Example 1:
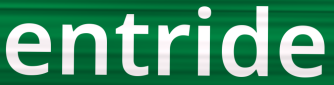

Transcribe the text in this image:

entride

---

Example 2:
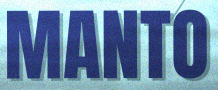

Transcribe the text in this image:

MANTO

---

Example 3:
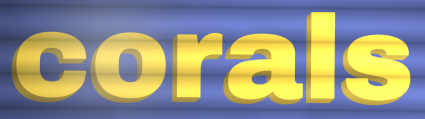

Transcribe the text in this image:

corals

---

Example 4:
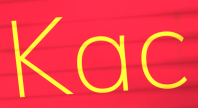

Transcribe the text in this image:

Kac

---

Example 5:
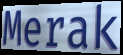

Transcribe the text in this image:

Merak